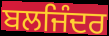
ਬਲਜਿੰਦਰ